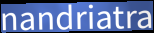
nandriatra